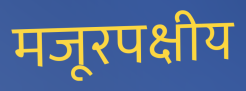
मजूरपक्षीय